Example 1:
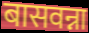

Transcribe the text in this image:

बासवन्ना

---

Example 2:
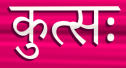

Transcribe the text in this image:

कुत्सः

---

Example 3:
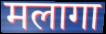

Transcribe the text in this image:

मलागा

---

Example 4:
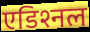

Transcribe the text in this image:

एडिश्नल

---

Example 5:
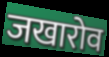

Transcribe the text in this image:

जखारोव